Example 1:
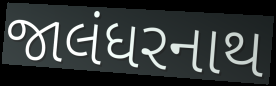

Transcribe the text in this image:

જાલંધરનાથ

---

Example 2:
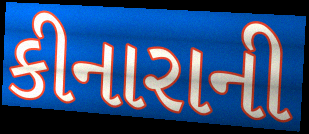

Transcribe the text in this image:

કીનારાની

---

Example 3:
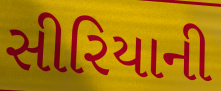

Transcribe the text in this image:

સીરિયાની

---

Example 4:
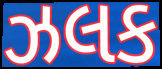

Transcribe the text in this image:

ઝલક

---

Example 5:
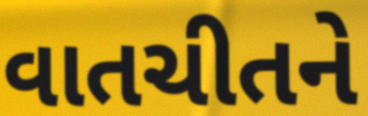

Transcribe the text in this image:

વાતચીતને